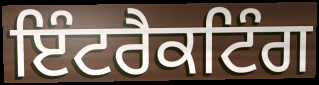
ਇੰਟਰੈਕਟਿੰਗ